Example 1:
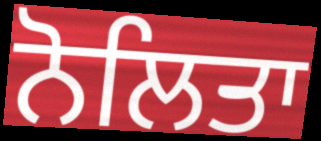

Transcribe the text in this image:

ਨੋਲਿਤਾ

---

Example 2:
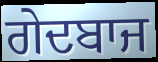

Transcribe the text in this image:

ਗੇਦਬਾਜ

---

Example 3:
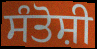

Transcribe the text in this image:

ਸੰਤੋਸ਼ੀ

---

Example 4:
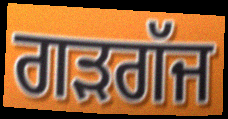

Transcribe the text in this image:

ਗਡ਼ਗੱਜ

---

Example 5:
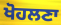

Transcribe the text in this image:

ਖੋਹਲਣਾ